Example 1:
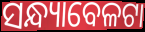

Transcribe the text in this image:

ସନ୍ଧ୍ୟାବେଳଟା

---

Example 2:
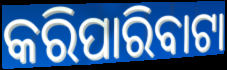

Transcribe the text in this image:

କରିପାରିବାଟା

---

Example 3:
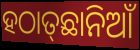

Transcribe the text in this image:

ହଠାତ୍‌ଛାନିଆଁ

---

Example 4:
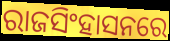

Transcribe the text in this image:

ରାଜସିଂହାସନରେ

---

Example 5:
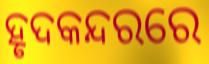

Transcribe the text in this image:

ହୃଦକନ୍ଦରରେ